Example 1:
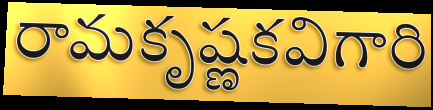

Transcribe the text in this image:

రామకృష్ణకవిగారి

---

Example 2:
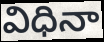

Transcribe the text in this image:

విధినా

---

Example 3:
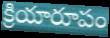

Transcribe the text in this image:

క్రియారూపం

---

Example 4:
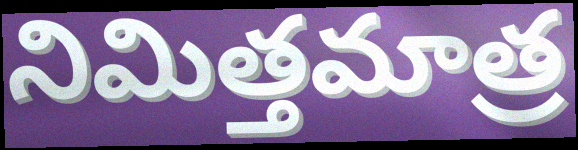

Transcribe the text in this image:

నిమిత్తమాత్ర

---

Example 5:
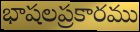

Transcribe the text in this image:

భాషలప్రకారము